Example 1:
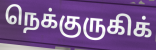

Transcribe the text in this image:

நெக்குருகிக்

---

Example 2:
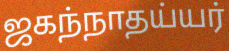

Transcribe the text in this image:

ஜகந்நாதய்யர்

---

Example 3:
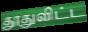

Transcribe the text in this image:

தூதுவிட்ட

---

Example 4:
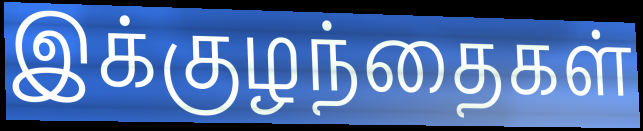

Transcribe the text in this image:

இக்குழந்தைகள்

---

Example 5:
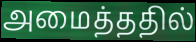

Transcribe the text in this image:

அமைத்ததில்